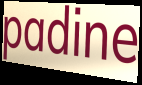
padine